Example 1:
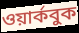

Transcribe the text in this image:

ওয়ার্কবুক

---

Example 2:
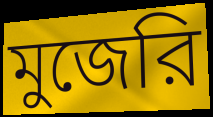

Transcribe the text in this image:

মুজেরি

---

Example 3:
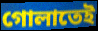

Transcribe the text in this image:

গোলাতেই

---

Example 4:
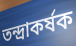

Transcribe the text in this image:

তন্দ্রাকর্ষক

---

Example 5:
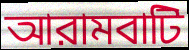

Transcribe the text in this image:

আরামবাটি